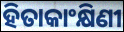
ହିତାକାଂକ୍ଷିଣୀ